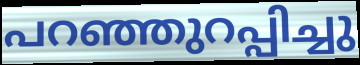
പറഞ്ഞുറപ്പിച്ചു